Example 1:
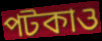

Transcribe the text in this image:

পটকাও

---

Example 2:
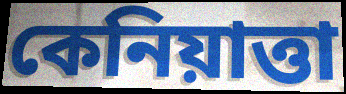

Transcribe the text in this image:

কেনিয়াত্তা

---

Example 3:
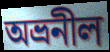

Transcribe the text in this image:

অভ্রনীল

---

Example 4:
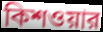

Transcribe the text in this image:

কিশওয়ার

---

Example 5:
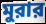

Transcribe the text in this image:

মুরার